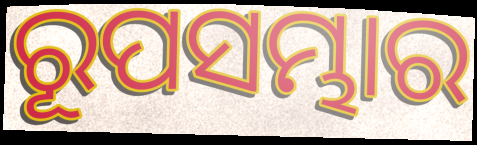
ରୂପସମ୍ଭାର